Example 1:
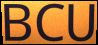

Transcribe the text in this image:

BCU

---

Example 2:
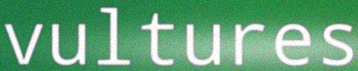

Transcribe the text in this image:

vultures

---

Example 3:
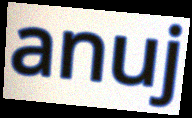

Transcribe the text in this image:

anuj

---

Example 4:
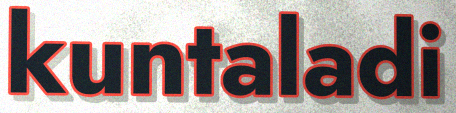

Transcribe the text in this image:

kuntaladi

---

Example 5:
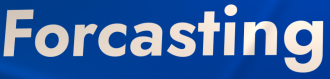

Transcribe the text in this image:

Forcasting